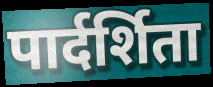
पार्दर्शिता